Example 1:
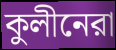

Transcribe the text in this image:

কুলীনেরা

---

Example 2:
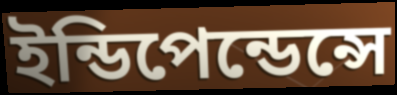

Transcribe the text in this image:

ইন্ডিপেন্ডেন্সে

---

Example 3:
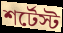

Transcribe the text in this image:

শর্টেস্ট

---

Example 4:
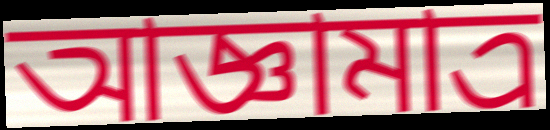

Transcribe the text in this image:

আজ্ঞামাত্র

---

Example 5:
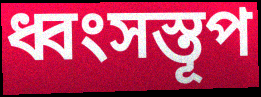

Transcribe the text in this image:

ধ্বংসস্তূপ